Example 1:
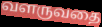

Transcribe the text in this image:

வளருவதை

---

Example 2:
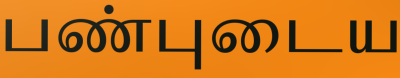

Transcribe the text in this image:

பண்புடைய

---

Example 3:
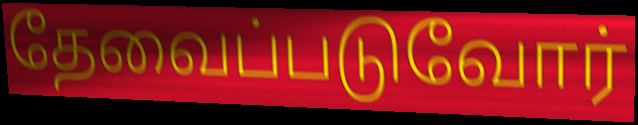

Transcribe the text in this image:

தேவைப்படுவோர்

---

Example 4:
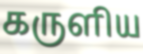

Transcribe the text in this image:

கருளிய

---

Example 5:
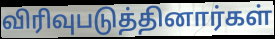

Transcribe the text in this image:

விரிவுபடுத்தினார்கள்